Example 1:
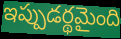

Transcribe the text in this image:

ఇప్పుడర్థమైంది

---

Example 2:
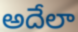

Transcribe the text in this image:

అదేలా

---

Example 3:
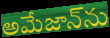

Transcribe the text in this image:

అమేజాన్‌ను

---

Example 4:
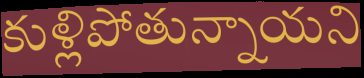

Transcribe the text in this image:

కుళ్లిపోతున్నాయని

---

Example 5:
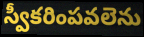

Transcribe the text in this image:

స్వీకరింపవలెను